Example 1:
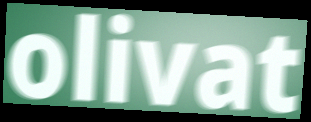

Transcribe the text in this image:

olivat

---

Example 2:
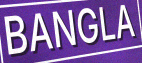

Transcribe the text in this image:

BANGLA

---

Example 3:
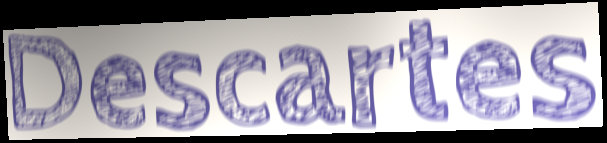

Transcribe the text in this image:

Descartes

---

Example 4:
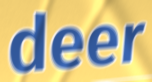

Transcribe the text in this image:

deer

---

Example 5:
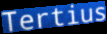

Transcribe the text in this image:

Tertius